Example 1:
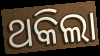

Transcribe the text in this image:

ଥକିଲା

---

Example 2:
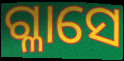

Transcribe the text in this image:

ଗ୍ଳାସେ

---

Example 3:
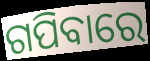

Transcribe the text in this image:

ଗପିବାରେ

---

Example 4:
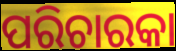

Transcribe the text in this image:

ପରିଚାରକା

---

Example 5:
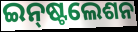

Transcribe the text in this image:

ଇନ୍‌ଷ୍ଟଲେଶନ